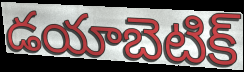
డయాబెటిక్